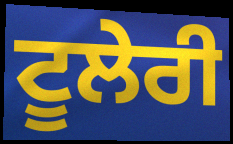
ਟੂਲੇਰੀ